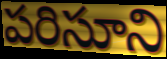
పరిసూని